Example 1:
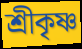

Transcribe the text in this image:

শ্ৰীকৃষ্ণ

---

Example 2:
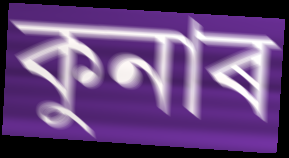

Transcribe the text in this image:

কুনাৰ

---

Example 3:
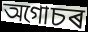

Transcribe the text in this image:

অগোচৰ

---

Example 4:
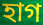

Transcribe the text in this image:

হাগ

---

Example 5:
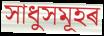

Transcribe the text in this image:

সাধুসমূহৰ